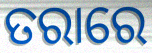
ତରାରେ